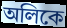
অলিকে